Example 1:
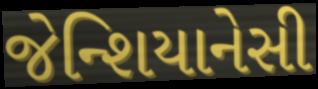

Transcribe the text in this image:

જેન્શિયાનેસી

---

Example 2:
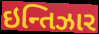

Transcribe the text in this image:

ઇન્તિઝાર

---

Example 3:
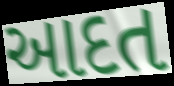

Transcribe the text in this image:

આદત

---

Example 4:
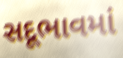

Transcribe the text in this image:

સદૂભાવમાં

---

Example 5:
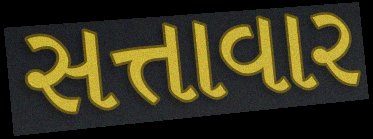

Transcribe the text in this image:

સત્તાવાર